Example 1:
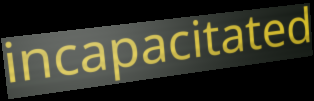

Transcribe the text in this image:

incapacitated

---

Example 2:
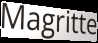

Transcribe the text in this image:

Magritte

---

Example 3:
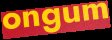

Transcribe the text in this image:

ongum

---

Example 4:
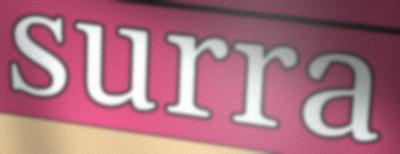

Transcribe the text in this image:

surra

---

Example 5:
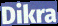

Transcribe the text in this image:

Dikra